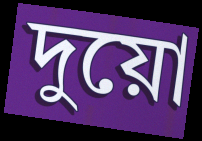
দুয়ো